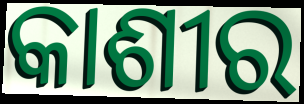
କାଶୀର